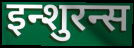
इन्शुरन्स